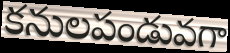
కనులపండువగా